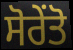
ਸੋਰੇਂਤੋ